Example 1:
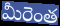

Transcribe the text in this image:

మీరెంత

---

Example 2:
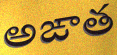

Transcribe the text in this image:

అఙాత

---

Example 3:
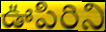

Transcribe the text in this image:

ఊపిరిని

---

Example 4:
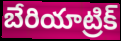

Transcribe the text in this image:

బేరియాట్రిక్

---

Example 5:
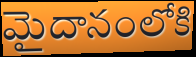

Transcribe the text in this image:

మైదానంలోకి